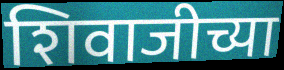
शिवाजीच्या